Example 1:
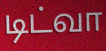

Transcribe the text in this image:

டிட்வா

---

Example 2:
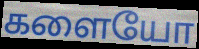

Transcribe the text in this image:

களையோ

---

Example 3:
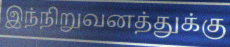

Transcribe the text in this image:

இந்நிறுவனத்துக்கு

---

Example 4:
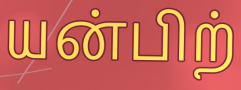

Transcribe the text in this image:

யன்பிற்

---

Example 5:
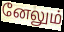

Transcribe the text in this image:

னேலும்